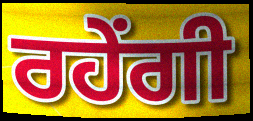
ਰਹੇਂਗੀ